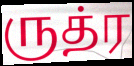
ருத்ர